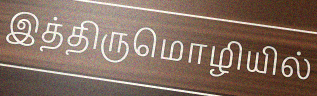
இத்திருமொழியில்